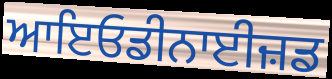
ਆਇਓਡੀਨਾਈਜ਼ਡ